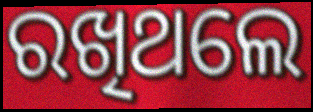
ରଖିଥଲେ